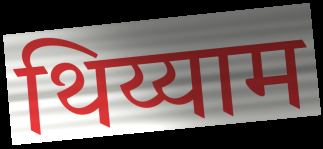
थिय्याम